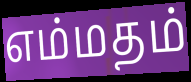
எம்மதம்